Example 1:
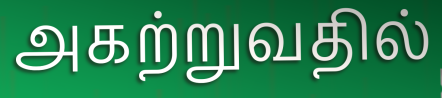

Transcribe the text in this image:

அகற்றுவதில்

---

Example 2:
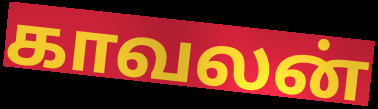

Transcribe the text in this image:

காவலன்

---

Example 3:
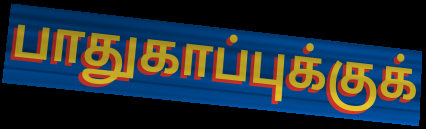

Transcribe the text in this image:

பாதுகாப்புக்குக்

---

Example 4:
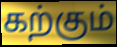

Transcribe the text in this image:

கற்கும்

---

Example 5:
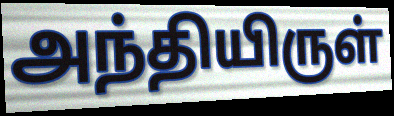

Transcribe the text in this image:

அந்தியிருள்